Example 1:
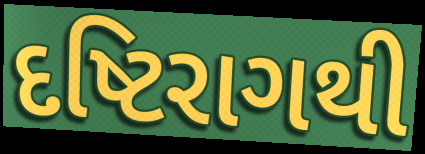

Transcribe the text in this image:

દષ્ટિરાગથી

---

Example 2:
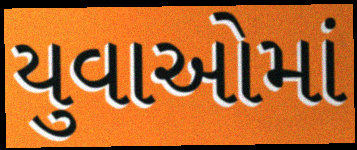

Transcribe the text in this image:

યુવાઓમાં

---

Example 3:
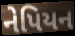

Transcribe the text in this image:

નેપિયન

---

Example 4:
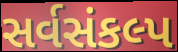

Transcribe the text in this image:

સર્વસંકલ્પ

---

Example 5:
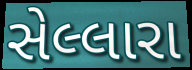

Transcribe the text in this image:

સેલ્લારા